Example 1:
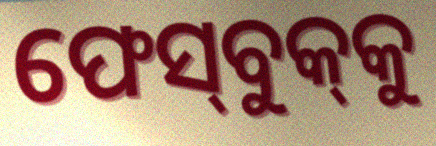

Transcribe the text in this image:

ଫେସ୍‌ବୁକ୍‌କୁ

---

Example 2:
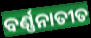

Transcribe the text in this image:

ବର୍ଣ୍ଣନାତୀତ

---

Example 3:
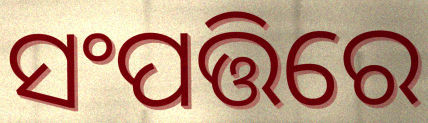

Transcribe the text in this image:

ସଂପତ୍ତିରେ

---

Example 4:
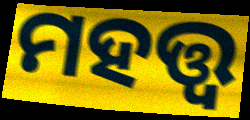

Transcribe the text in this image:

ମହତ୍ତ୍ବ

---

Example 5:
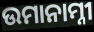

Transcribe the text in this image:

ଉମାନାମ୍ନୀ